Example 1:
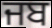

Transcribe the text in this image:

ਜਬ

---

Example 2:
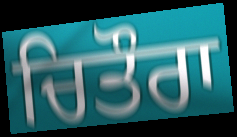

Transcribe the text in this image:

ਚਿਤੌਰਾ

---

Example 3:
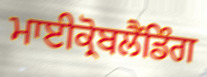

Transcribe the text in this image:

ਮਾਈਕ੍ਰੋਬਲੈਂਡਿੰਗ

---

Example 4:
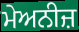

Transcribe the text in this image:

ਮੇਅਨੀਜ਼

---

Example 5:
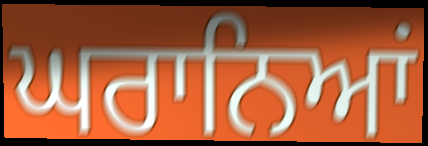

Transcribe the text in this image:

ਘਰਾਨਿਆਂ